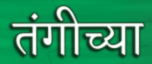
तंगीच्या